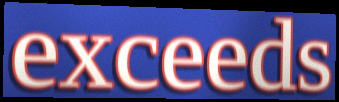
exceeds